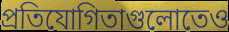
প্রতিযোগিতাগুলোতেও